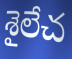
శైలేచ